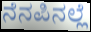
ನೆನಪಿನಲ್ಲೆ